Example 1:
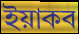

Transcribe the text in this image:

ইয়াকব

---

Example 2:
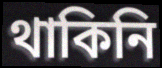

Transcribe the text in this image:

থাকিনি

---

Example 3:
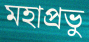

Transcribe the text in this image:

মহাপ্রভু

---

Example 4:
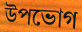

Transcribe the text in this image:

উপভোগ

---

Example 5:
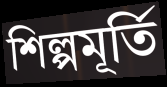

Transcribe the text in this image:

শিল্পমূর্তি